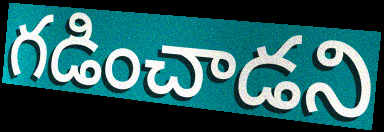
గడించాడని